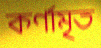
কর্ণামৃত